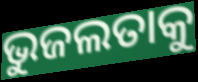
ଭୁଜଲତାକୁ